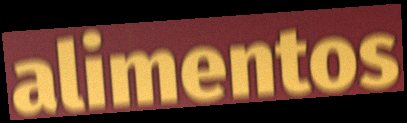
alimentos